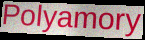
Polyamory